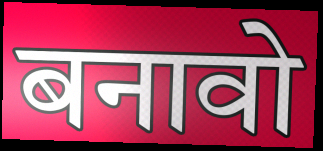
बनावो